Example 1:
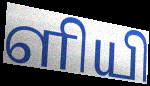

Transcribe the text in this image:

ளியி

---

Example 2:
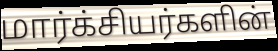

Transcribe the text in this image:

மார்க்சியர்களின்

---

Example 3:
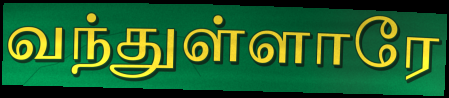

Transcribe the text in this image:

வந்துள்ளாரே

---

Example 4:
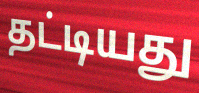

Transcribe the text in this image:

தட்டியது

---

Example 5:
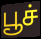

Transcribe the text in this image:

பூச்